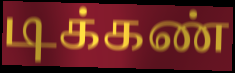
டிக்கண்